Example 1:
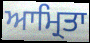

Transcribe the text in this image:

ਆਮ੍ਰਿਤਾ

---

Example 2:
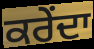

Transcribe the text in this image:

ਕਰੇਂਦਾ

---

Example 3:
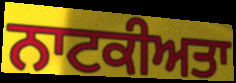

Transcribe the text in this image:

ਨਾਟਕੀਅਤਾ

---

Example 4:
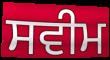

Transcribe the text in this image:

ਸਵੀਮ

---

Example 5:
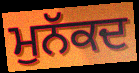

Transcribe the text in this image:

ਮੁਨੱਕਦ